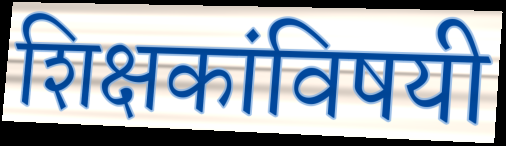
शिक्षकांविषयी